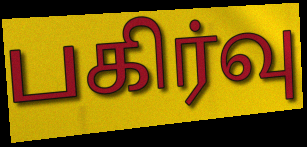
பகிர்வு